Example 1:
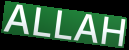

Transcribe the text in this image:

ALLAH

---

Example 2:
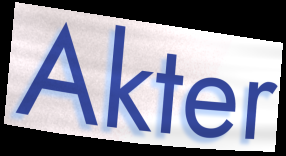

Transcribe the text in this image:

Akter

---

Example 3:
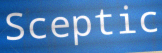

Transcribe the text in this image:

Sceptic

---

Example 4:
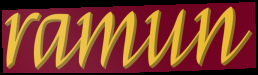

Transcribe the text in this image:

ramun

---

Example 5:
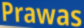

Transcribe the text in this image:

Prawas